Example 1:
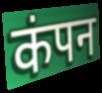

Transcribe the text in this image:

कंपन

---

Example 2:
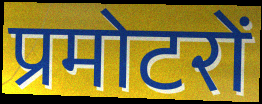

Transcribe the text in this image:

प्रमोटरों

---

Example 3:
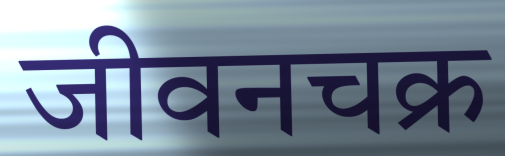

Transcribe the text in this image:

जीवनचक्र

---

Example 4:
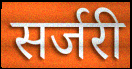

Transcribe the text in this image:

सर्जरी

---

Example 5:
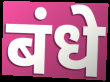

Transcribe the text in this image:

बंधे